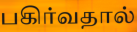
பகிர்வதால்